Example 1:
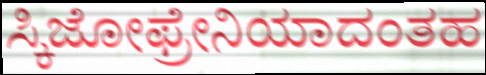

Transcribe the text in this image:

ಸ್ಕಿಜೋಫ್ರೇನಿಯಾದಂತಹ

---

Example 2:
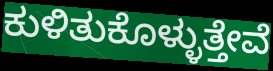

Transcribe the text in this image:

ಕುಳಿತುಕೊಳ್ಳುತ್ತೇವೆ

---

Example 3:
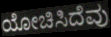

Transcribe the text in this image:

ಯೋಚಿಸಿದೆವು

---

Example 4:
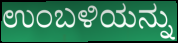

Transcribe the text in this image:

ಉಂಬಳಿಯನ್ನು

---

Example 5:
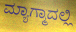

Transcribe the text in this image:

ಮ್ಯಾಗ್ಮಾದಲ್ಲಿ